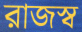
রাজস্ব